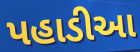
પહાડીઆ